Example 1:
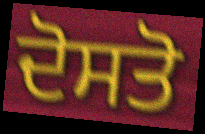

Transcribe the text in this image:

ਦੋਸਤੋ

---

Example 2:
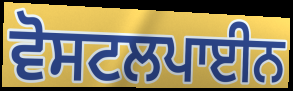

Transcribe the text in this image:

ਵੋਸਟਲਪਾਈਨ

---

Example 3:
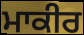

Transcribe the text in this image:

ਮਾਕੀਰ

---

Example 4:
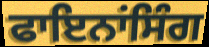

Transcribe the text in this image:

ਫਾਇਨਾਂਸਿੰਗ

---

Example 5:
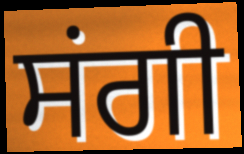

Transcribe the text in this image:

ਸਂਗੀ